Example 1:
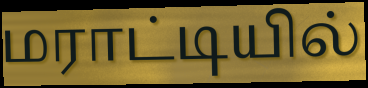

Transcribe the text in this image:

மராட்டியில்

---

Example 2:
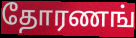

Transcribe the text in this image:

தோரணங்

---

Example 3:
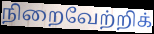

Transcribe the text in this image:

நிறைவேற்றிக்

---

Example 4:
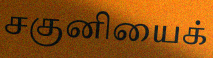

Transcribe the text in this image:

சகுனியைக்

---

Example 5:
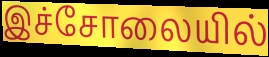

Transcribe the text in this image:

இச்சோலையில்